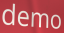
demo